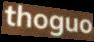
thoguo